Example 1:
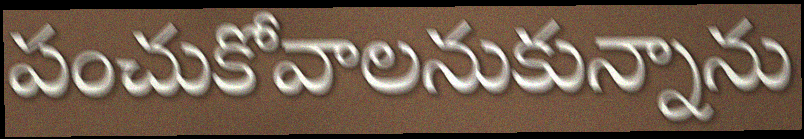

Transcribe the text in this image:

పంచుకోవాలనుకున్నాను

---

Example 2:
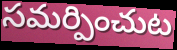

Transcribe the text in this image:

సమర్పించుట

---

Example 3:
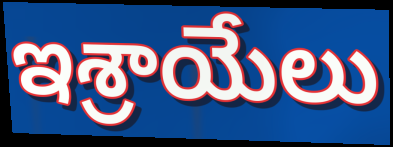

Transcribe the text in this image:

ఇశ్రాయేలు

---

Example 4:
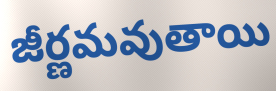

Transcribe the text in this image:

జీర్ణమవుతాయి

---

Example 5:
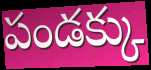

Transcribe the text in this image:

పండక్కు